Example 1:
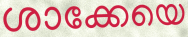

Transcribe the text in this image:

ശാക്കേയെ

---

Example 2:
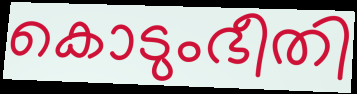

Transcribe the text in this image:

കൊടുംഭീതി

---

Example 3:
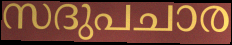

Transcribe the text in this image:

സദുപചാര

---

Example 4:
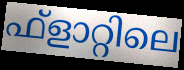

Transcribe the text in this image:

ഫ്ളാറ്റിലെ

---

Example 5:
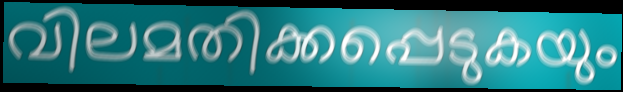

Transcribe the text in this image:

വിലമതിക്കപ്പെടുകയും